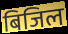
बिजिल